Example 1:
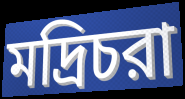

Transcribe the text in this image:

মদ্রিচরা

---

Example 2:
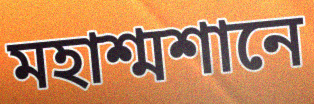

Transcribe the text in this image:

মহাশ্মশানে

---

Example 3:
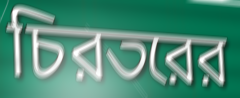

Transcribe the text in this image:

চিরতরের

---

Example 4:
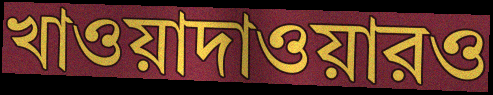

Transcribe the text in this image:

খাওয়াদাওয়ারও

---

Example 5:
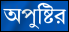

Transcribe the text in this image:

অপুষ্টির